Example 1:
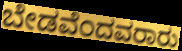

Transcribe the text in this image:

ಬೇಡವೆಂದವರಾರು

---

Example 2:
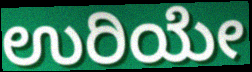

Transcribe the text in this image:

ಉರಿಯೇ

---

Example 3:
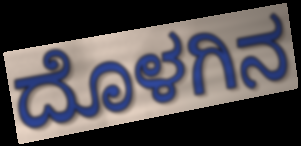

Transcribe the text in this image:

ದೊಳಗಿನ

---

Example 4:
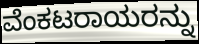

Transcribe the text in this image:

ವೆಂಕಟರಾಯರನ್ನು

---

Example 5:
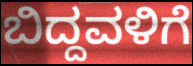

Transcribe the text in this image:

ಬಿದ್ದವಳಿಗೆ